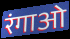
रंगाओ